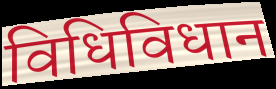
विधिविधान